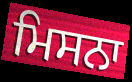
ਮਿਸਨਾ